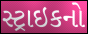
સ્ટ્રાઇકનો